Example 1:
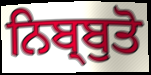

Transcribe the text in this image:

ਨਿਬ੍ਬੁਤੋ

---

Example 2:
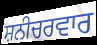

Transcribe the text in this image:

ਸ਼ਨੀਚਰਵਾਰ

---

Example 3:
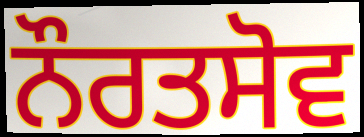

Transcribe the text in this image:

ਨੌਰਤਸੋਵ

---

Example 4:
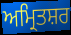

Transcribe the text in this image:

ਅਮ੍ਰਿਤਸ਼ਰ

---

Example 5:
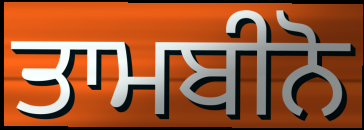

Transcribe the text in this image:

ਤਾਮਬੀਨੋ